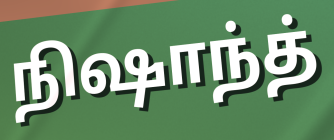
நிஷாந்த்